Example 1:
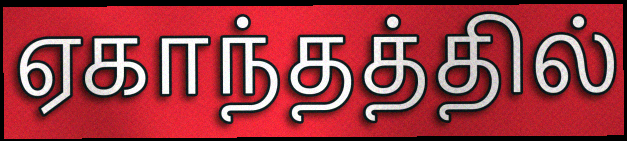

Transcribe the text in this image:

ஏகாந்தத்தில்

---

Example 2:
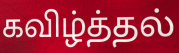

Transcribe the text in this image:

கவிழ்த்தல்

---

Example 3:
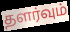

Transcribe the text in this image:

தளர்வும்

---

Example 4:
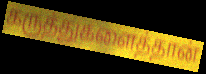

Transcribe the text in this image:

கருத்துகளைத்தான்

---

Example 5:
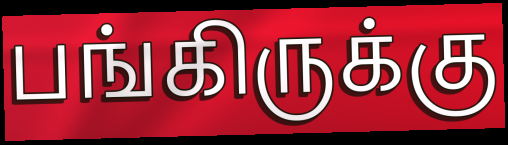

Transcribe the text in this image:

பங்கிருக்கு